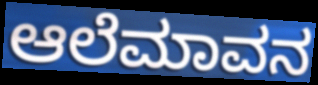
ಆಲೆಮಾವನ